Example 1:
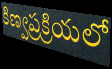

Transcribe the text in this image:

కిణ్వప్రక్రియలో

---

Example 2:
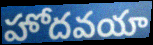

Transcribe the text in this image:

హోదవయా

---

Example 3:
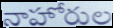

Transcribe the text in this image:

నాహోరుల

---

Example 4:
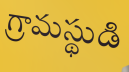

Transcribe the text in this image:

గ్రామస్థుడి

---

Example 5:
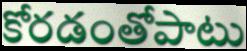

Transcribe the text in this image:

కోరడంతోపాటు